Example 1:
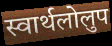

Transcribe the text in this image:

स्वार्थलोलुप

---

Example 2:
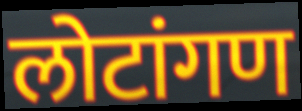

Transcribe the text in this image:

लोटांगण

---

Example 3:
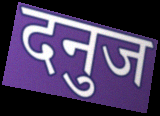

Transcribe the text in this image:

दनुज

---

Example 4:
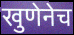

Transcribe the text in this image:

खुणेनेच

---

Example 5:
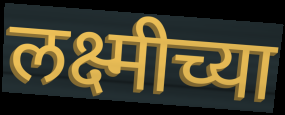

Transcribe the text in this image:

लक्ष्मीच्या